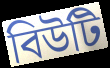
বিউটি